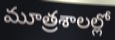
మూత్రశాలల్లో